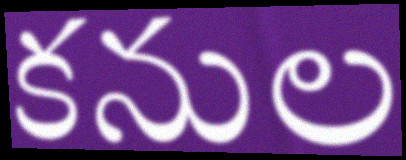
కనుల